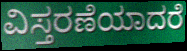
ವಿಸ್ತರಣೆಯಾದರೆ